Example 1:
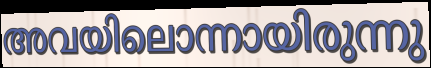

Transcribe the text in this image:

അവയിലൊന്നായിരുന്നു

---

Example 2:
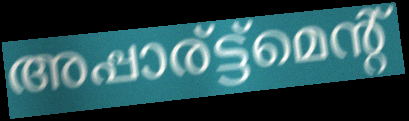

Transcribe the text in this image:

അപ്പാര്ട്ട്മെന്റ്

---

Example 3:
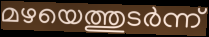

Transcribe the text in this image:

മഴയെത്തുടർന്ന്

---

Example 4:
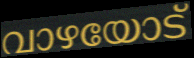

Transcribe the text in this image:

വാഴയോട്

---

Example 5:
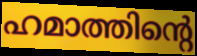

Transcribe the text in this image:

ഹമാത്തിന്റെ